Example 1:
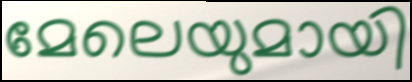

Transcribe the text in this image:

മേലെയുമായി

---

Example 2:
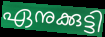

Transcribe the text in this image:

ഏനുക്കുട്ടി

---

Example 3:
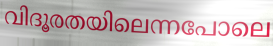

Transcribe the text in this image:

വിദൂരതയിലെന്നപോലെ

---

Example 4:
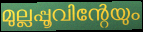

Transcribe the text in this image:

മുല്ലപ്പൂവിന്റേയും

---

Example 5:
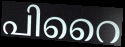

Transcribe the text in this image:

പിറൈ